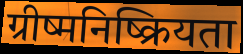
ग्रीष्मनिष्क्रियता